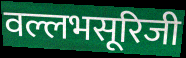
वल्लभसूरिजी